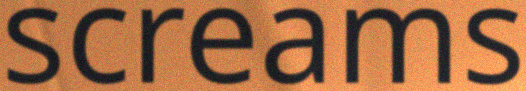
screams